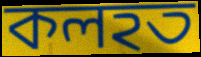
কলহত